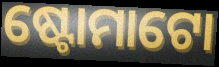
ଷ୍ଟୋମାଟୋ